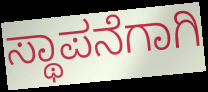
ಸ್ಥಾಪನೆಗಾಗಿ